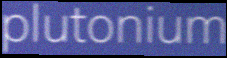
plutonium